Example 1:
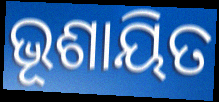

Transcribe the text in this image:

ଭୂଶାୟିତ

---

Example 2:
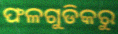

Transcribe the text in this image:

ଫଳଗୁଡିକରୁ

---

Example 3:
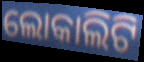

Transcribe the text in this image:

ଲୋକାଲିଟି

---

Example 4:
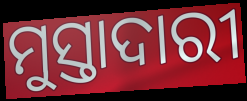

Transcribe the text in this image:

ମୁସ୍ତାଦାରୀ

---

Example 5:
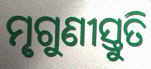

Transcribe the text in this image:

ମୃଗୁଣୀସ୍ତୁତି